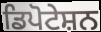
ਡਿਪੋਟੇਸ਼ਨ